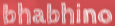
bhabhino